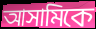
আসামিকে